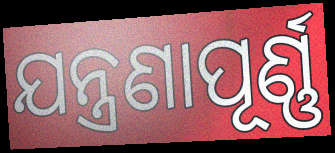
ଯନ୍ତ୍ରଣାପୂର୍ଣ୍ଣ